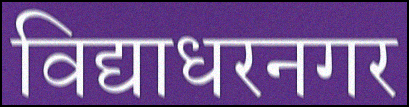
विद्याधरनगर